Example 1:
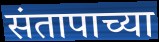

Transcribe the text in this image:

संतापाच्या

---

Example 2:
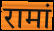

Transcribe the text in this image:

रामां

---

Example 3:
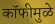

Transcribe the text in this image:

कॉफीमुळे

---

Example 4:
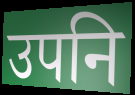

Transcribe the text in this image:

उपनि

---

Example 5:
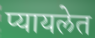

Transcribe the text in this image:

प्यायलेत